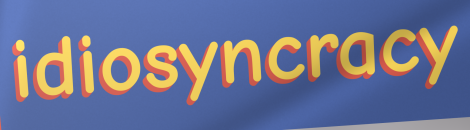
idiosyncracy